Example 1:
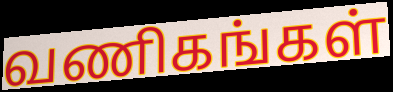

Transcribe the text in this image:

வணிகங்கள்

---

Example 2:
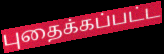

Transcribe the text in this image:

புதைக்கப்பட்ட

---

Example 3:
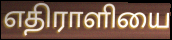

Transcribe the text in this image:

எதிராளியை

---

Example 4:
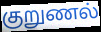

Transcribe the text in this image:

குறுணல்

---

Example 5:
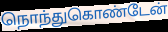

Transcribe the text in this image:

நொந்துகொண்டேன்